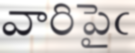
వారిపైఁ